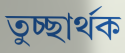
তুচ্ছার্থক